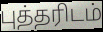
புத்தரிடம்